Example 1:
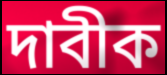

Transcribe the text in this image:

দাবীক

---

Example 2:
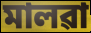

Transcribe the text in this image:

মালৱা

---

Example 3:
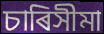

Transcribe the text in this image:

চাৰিসীমা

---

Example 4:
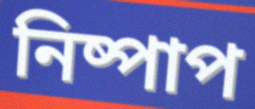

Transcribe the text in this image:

নিষ্পাপ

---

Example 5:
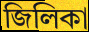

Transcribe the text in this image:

জিলিকা